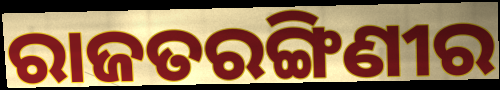
ରାଜତରଙ୍ଗିଣୀର